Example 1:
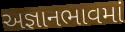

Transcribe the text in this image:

અજ્ઞાનભાવમાં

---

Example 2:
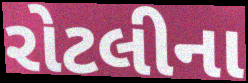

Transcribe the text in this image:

રોટલીના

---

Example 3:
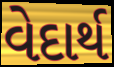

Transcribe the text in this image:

વેદાર્થ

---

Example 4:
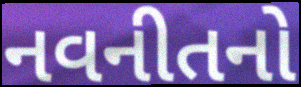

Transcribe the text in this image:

નવનીતનો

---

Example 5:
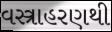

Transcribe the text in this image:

વસ્ત્રાહરણથી